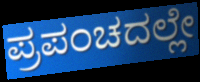
ಪ್ರಪಂಚದಲ್ಲೇ